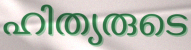
ഹിത്യരുടെ